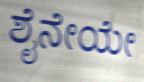
ಶೈನೇಯೇ